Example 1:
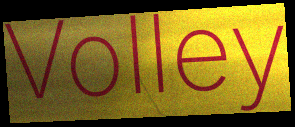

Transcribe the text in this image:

Volley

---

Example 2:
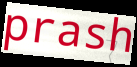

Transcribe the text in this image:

prash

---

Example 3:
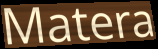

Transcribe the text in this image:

Matera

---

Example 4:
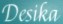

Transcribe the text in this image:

Desika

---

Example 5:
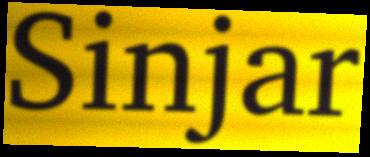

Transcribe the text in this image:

Sinjar